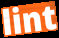
lint